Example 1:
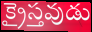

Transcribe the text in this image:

క్రైస్తవుడు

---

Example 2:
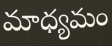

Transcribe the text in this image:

మాధ్యమం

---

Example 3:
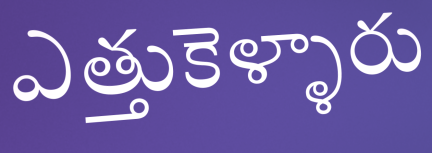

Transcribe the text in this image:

ఎత్తుకెళ్ళారు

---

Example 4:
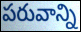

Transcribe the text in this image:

పరువాన్ని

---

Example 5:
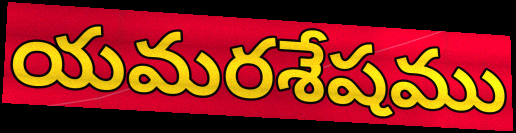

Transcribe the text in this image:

యమరశేషము